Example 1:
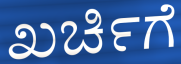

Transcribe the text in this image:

ಖರ್ಚಿಗೆ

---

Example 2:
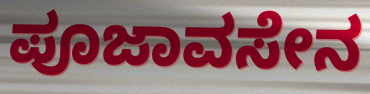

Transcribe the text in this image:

ಪೂಜಾವಸೇನ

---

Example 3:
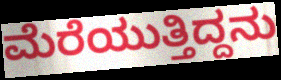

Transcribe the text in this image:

ಮೆರೆಯುತ್ತಿದ್ದನು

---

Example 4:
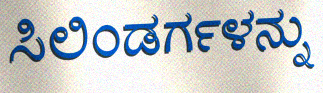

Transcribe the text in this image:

ಸಿಲಿಂಡರ್ಗಳನ್ನು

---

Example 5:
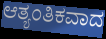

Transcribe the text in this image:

ಆತ್ಯಂತಿಕವಾದ